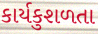
કાર્યકુશળતા